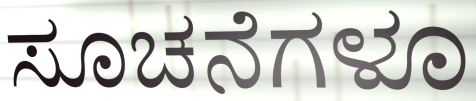
ಸೂಚನೆಗಳೂ